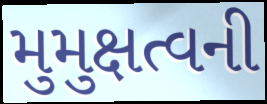
મુમુક્ષત્વની